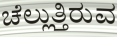
ಚೆಲ್ಲುತ್ತಿರುವ